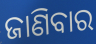
ଜାଣିବାର